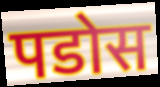
पडोस